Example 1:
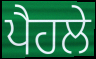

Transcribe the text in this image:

ਪੈਹਲੇ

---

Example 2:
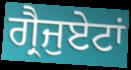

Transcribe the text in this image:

ਗ੍ਰੈਜੁਏਟਾਂ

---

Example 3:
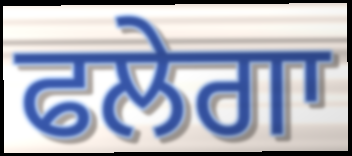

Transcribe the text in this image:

ਫਲੇਗਾ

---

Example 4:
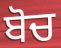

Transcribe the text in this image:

ਬੋਚ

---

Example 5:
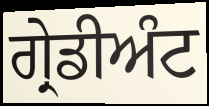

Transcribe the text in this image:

ਗ੍ਰੇਡੀਅੰਟ